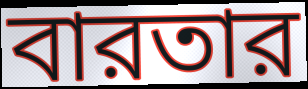
বারতার